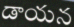
డాయన